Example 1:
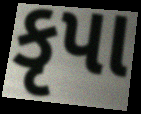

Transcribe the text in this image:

કૃપા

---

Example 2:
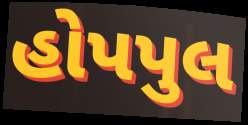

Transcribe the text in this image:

હોપપુલ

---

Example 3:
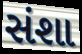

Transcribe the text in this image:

સંશા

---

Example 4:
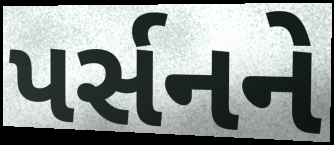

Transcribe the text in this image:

પર્સનને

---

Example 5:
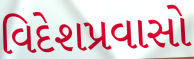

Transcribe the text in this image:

વિદેશપ્રવાસો